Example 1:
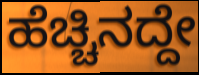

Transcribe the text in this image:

ಹೆಚ್ಚಿನದ್ದೇ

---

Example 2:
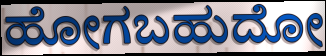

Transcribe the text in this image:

ಹೋಗಬಹುದೋ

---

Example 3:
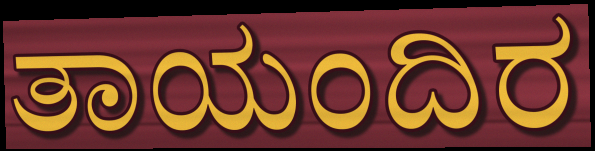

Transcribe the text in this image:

ತಾಯಂದಿರ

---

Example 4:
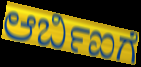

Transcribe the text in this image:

ಆರ್ಬಿಐಗೆ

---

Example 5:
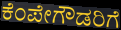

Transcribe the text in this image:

ಕೆಂಪೇಗೌಡರಿಗೆ